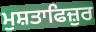
ਮੁਸ਼ਤਾਫਿਜ਼ੁਰ